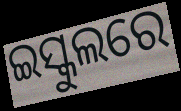
ଇସ୍କୁଲରେ